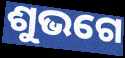
ଶୁଭଗେ